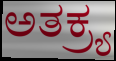
ಅತಕ್ರ್ಯ